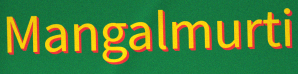
Mangalmurti